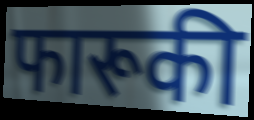
फारूकी